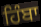
ਹਿੰਬਾ